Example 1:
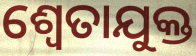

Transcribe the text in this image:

ଶ୍ଵେତାଯୁକ୍ତ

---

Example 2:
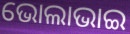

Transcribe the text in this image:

ଭୋଲାଭାଇ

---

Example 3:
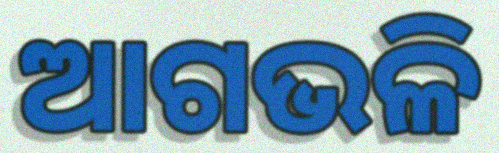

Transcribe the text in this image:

ଆଗଭଳି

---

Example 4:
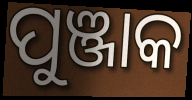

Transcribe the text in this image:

ପୁଞ୍ଜାକ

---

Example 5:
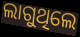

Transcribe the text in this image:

ଲାଗୁଥିଲେ